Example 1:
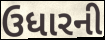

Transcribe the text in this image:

ઉધારની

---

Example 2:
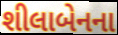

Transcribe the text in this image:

શીલાબેનના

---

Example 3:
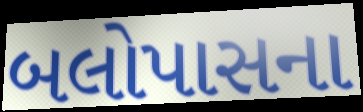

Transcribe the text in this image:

બલોપાસના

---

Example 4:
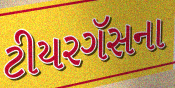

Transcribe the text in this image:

ટીયરગૅસના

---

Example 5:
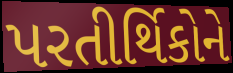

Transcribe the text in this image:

પરતીર્થિકોને